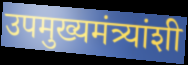
उपमुख्यमंत्र्यांशी